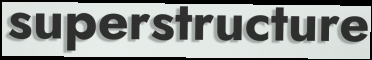
superstructure